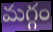
మగ్గం